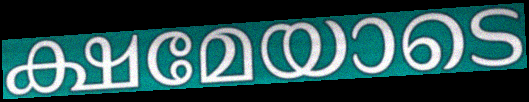
ക്ഷമേയാടെ